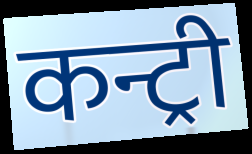
कन्ट्री